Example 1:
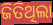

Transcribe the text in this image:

ଜିତିଥିଲା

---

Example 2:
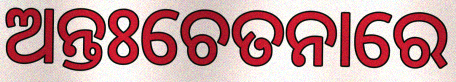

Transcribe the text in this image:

ଅନ୍ତଃଚେତନାରେ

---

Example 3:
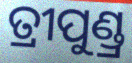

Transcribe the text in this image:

ତ୍ରୀପୁଣ୍ଡ୍ର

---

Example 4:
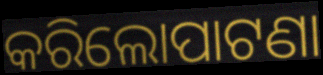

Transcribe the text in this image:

କରିଲୋପାଟଣା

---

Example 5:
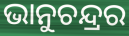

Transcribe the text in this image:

ଭାନୁଚନ୍ଦ୍ରର